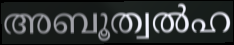
അബൂത്വൽഹ